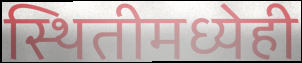
स्थितीमध्येही